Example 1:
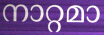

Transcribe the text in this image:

നാറ്റമാ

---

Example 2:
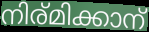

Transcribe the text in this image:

നിര്മിക്കാന്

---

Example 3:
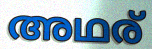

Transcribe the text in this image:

അഥര്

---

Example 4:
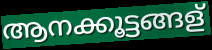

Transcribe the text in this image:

ആനക്കൂട്ടങ്ങള്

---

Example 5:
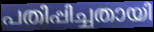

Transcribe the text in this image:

പതിപ്പിച്ചതായി